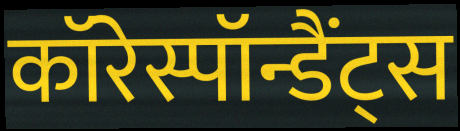
कॉरेस्पॉन्डैंट्स